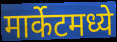
मार्केटमध्ये